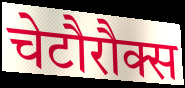
चेटौरौक्स